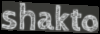
shakto